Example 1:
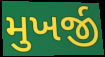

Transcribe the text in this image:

મુખર્જી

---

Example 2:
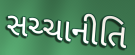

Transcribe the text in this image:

સચ્ચાનીતિ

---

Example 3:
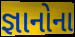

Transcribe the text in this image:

જ્ઞાનોના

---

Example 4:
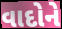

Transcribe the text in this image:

વાદોને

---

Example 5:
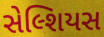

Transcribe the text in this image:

સેલ્શિયસ